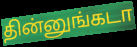
தின்னுங்கடா